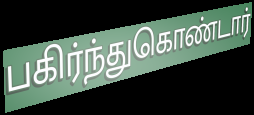
பகிர்ந்துகொண்டார்